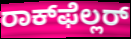
ರಾಕ್‌ಫೆಲ್ಲರ್